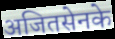
अजितसेनके